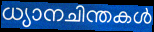
ധ്യാനചിന്തകൾ